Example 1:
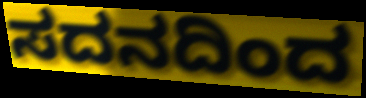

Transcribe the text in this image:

ಸದನದಿಂದ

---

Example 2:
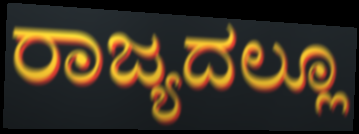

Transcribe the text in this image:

ರಾಜ್ಯದಲ್ಲೂ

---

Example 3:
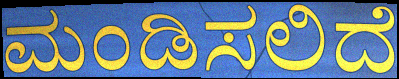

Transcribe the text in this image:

ಮಂಡಿಸಲಿದೆ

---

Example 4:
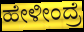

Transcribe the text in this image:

ಹೇಳೀಂದ್ರೆ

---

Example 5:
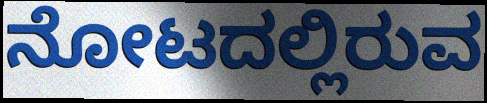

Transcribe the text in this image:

ನೋಟದಲ್ಲಿರುವ